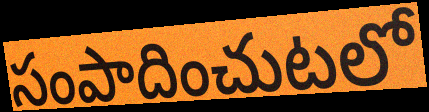
సంపాదించుటలో